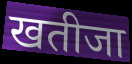
खतीजा